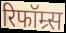
रिफॉम्र्स